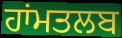
ਹਾਂਮਤਲਬ